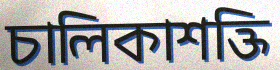
চালিকাশক্তি